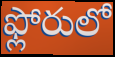
ఫ్లోరులో